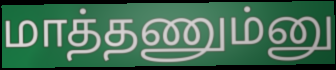
மாத்தணும்னு